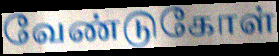
வேண்டுகோள்